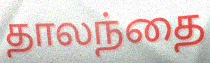
தாலந்தை